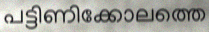
പട്ടിണിക്കോലത്തെ